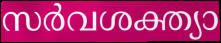
സർവശക്ത്യാ